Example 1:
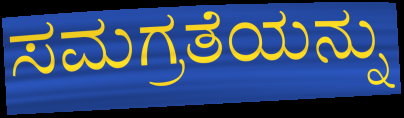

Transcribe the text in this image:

ಸಮಗ್ರತೆಯನ್ನು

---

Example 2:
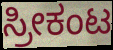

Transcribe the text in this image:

ಸ್ರೀಕಂಟ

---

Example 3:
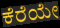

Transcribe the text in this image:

ಕೆರೆಯೇ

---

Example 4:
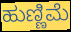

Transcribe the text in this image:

ಹುಣ್ಣಿಮೆ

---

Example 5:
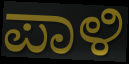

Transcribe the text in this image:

ಪಾಳಿ